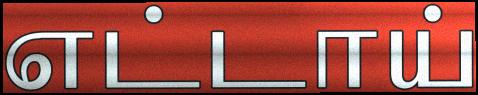
எட்டாய்